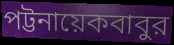
পট্টনায়েকবাবুর